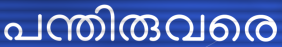
പന്തിരുവരെ